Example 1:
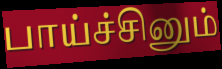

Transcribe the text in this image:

பாய்ச்சினும்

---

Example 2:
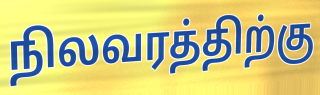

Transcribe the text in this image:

நிலவரத்திற்கு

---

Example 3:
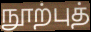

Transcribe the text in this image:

நூற்புத்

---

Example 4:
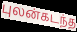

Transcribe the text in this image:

புலன்கடந்த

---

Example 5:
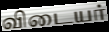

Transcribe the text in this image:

விடையர்